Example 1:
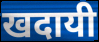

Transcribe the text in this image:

खदायी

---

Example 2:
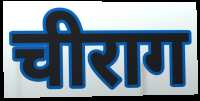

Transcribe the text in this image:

चीराग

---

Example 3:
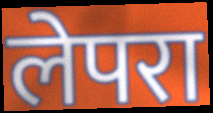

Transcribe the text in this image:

लेपरा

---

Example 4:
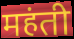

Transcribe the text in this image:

महंती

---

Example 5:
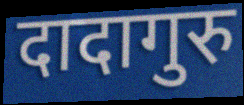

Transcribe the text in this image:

दादागुरु